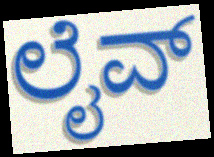
ಲೈವ್